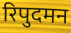
रिपुदमन